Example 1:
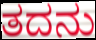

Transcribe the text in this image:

ತದನು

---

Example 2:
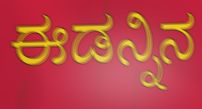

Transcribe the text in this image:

ಈಡನ್ನಿನ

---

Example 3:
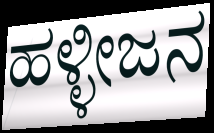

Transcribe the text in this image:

ಹಳ್ಳೀಜನ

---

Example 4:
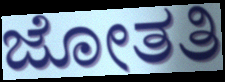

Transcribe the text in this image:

ಜೋತತಿ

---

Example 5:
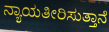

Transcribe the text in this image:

ನ್ಯಾಯತೀರಿಸುತ್ತಾನೆ